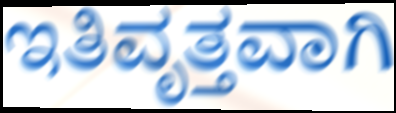
ಇತಿವೃತ್ತವಾಗಿ